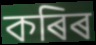
কৰিৰ